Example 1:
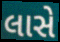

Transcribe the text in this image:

લાસે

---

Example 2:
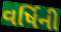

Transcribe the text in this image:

વર્ષિની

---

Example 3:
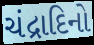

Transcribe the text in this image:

ચંદ્રાદિનો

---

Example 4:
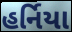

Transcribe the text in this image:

હર્નિયા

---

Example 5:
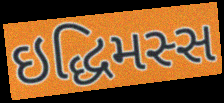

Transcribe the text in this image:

ઇદ્ધિમસ્સ